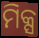
ମିକ୍ସ